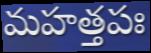
మహత్తపః